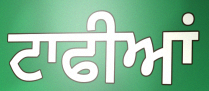
ਟਾਫੀਆਂ